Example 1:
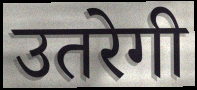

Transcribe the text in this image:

उतरेगी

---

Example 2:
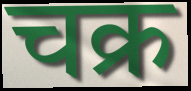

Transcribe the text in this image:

चक्र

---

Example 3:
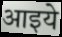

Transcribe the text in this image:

आइये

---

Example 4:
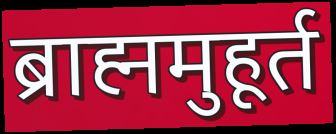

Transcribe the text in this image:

ब्राह्ममुहूर्त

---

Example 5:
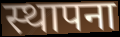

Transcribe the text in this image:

स्थापना